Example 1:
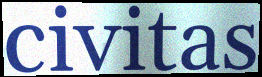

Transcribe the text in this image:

civitas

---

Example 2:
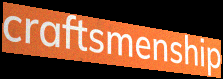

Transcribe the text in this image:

craftsmenship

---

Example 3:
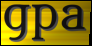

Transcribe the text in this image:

gpa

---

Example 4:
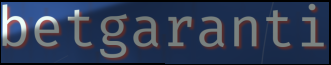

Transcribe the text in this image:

betgaranti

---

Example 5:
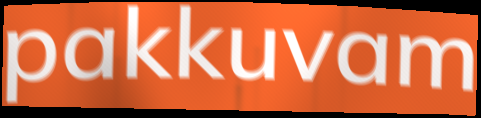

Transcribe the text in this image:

pakkuvam